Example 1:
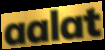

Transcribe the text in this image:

aalat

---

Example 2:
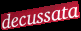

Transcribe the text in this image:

decussata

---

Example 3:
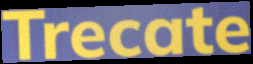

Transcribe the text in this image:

Trecate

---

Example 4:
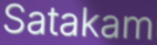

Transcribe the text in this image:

Satakam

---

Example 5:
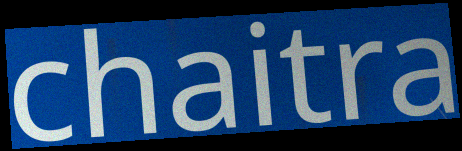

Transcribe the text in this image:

chaitra